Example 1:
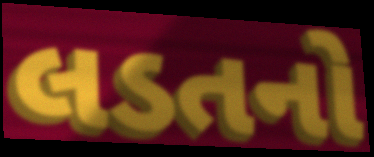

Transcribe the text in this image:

લડતનો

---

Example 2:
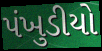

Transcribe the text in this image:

પંખુડીયો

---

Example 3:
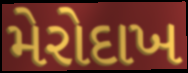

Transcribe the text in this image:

મેરોદાખ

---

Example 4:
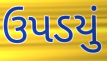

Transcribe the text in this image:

ઉપડયું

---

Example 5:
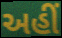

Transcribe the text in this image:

અહીઁ